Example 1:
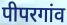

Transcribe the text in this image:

पीपरगांव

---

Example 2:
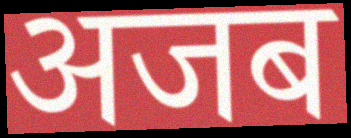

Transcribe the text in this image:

अजब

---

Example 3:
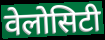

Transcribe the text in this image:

वेलोसिटी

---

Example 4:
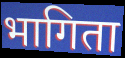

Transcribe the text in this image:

भागिता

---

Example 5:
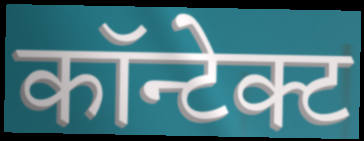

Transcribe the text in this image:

कॉन्टेक्ट